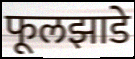
फूलझाडे